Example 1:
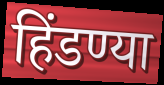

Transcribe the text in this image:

हिंडण्या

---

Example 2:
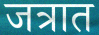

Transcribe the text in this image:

जत्रात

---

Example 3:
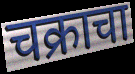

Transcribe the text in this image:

चक्राचा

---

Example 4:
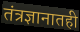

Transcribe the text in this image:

तंत्रज्ञानातही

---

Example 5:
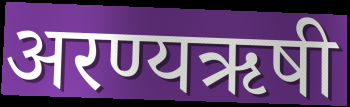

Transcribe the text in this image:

अरण्यऋषी